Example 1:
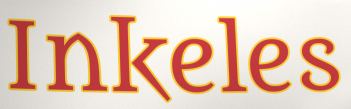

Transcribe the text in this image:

Inkeles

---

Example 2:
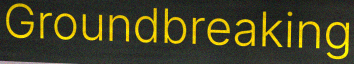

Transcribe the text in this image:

Groundbreaking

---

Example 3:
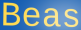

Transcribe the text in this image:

Beas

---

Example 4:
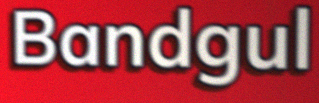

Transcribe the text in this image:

Bandgul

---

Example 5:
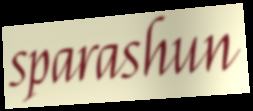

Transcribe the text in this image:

sparashun